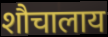
शौचालाय